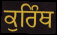
ਕੁਰਿੰਥ